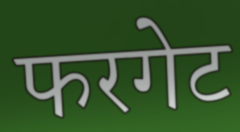
फरगेट